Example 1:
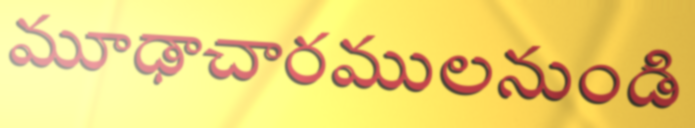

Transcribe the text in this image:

మూఢాచారములనుండి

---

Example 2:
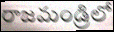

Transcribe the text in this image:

రాజమండ్రిలో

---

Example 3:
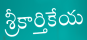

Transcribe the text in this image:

శ్రీకార్తికేయ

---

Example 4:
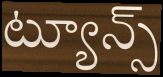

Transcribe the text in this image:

ట్యూన్స్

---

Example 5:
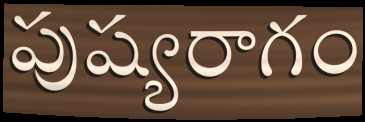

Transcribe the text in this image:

పుష్యరాగం